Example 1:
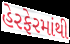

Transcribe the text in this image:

હેરફેરમાંથી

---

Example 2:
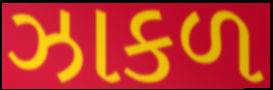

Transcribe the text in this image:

ઝાકળ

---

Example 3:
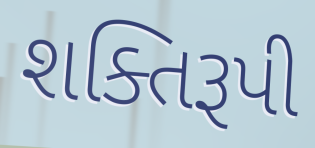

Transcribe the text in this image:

શક્તિરૂપી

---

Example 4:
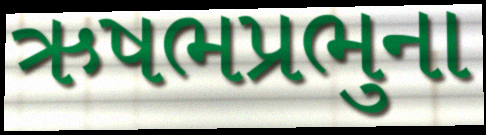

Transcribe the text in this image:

ઋષભપ્રભુના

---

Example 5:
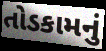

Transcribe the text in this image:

તોડકામનું